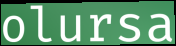
olursa